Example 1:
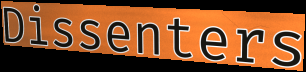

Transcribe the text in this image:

Dissenters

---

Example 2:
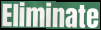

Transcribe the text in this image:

Eliminate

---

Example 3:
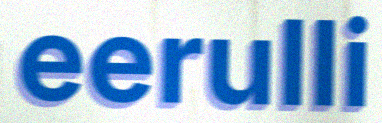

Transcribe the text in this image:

eerulli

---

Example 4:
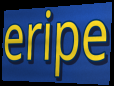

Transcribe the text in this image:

eripe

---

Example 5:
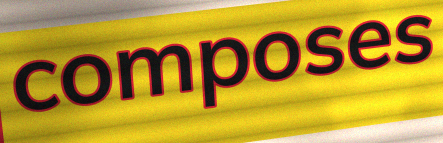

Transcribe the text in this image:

composes